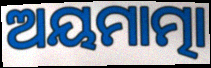
ଅୟମାତ୍ମା